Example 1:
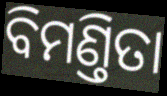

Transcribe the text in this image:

ବିମଣ୍ତିତା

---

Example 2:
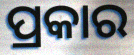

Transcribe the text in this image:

ପ୍ରକାର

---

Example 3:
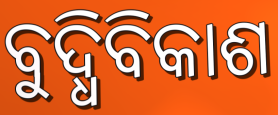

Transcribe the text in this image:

ବୁଦ୍ଧିବିକାଶ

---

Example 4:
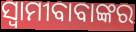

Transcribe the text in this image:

ସ୍ଵାମୀବାବାଙ୍କର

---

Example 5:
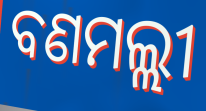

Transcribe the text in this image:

ବଣମଲ୍ଲୀ